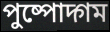
পুষ্পোদ্গম